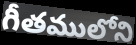
గీతములోని